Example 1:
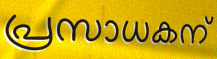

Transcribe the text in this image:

പ്രസാധകന്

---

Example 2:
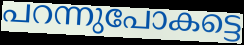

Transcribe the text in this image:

പറന്നുപോകട്ടെ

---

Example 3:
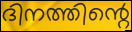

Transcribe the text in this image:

ദിനത്തിന്റെ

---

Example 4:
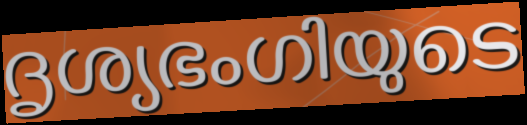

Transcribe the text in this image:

ദൃശ്യഭംഗിയുടെ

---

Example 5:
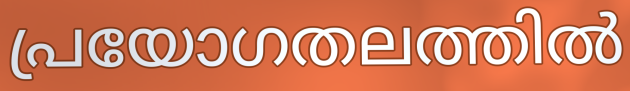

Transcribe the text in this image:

പ്രയോഗതലത്തിൽ